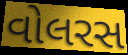
વોલરસ